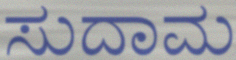
ಸುದಾಮ